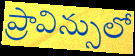
ప్రావిన్సులో